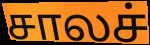
சாலச்